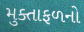
મુક્તાફળનો